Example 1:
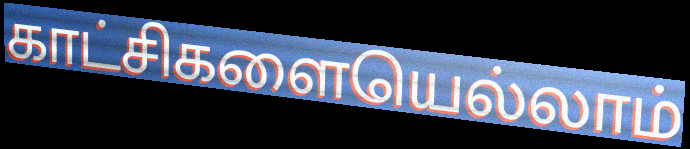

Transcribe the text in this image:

காட்சிகளையெல்லாம்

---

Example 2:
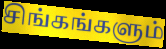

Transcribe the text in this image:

சிங்கங்களும்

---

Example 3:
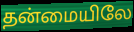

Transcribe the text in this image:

தன்மையிலே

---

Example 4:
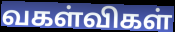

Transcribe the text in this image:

வகள்விகள்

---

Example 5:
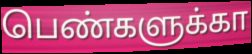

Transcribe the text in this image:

பெண்களுக்கா